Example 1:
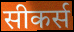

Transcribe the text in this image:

सीकर्स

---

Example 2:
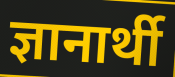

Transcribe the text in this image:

ज्ञानार्थी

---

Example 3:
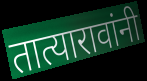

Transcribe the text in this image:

तात्यारावांनी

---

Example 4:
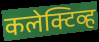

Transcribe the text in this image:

कलेक्टिव्ह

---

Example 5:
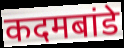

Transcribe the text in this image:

कदमबांडे